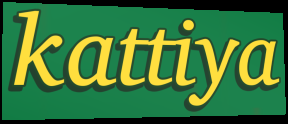
kattiya